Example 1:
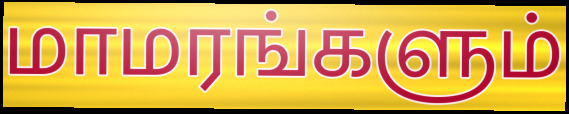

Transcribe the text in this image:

மாமரங்களும்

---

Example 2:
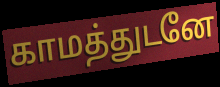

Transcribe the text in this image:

காமத்துடனே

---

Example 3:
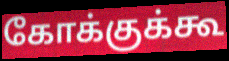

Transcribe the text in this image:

கோக்குக்கூ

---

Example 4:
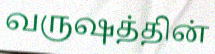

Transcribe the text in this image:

வருஷத்தின்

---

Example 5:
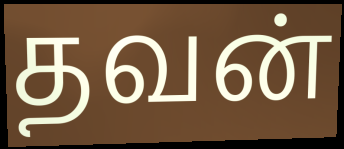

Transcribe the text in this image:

தவன்